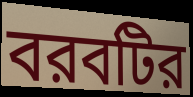
বরবটির